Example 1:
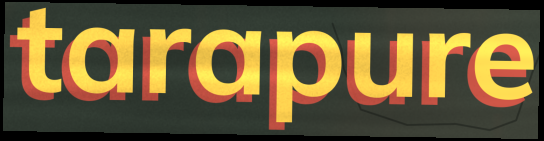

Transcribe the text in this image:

tarapure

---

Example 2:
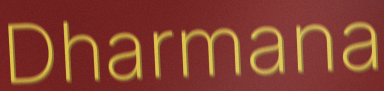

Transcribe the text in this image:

Dharmana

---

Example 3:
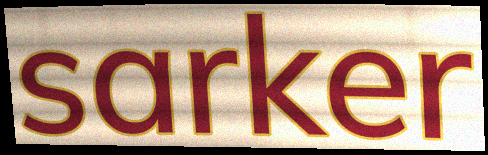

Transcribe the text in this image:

sarker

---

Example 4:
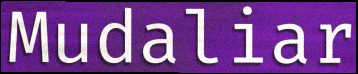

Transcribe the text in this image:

Mudaliar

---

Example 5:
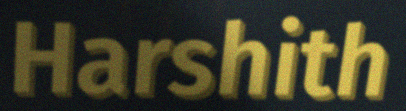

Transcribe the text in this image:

Harshith